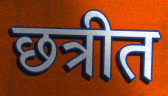
छत्रीत